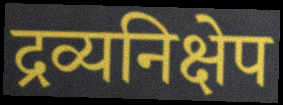
द्रव्यनिक्षेप